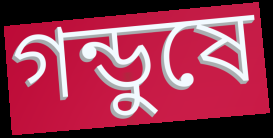
গন্ডুষে